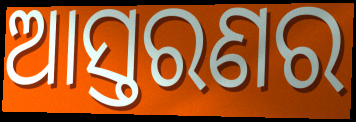
ଆସ୍ତରଣର